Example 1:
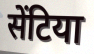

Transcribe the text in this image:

सेंटिया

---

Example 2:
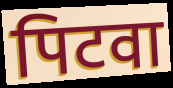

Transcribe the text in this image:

पिटवा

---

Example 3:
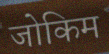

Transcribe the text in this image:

जोकिम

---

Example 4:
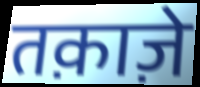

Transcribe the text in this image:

तक़ाज़े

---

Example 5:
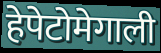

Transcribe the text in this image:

हेपेटोमेगाली